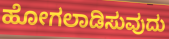
ಹೋಗಲಾಡಿಸುವುದು